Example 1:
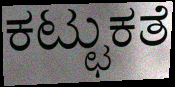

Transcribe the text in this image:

ಕಟ್ಟುಕತೆ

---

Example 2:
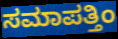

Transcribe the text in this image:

ಸಮಾಪತ್ತಿಂ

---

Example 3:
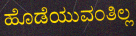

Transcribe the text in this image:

ಹೊಡೆಯುವಂತಿಲ್ಲ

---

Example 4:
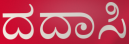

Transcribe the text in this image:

ದದಾಸಿ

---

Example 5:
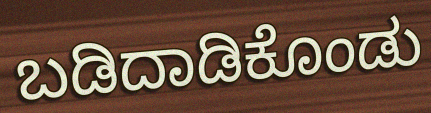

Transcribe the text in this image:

ಬಡಿದಾಡಿಕೊಂಡು